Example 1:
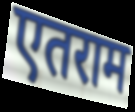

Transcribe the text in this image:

एतराम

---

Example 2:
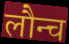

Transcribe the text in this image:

लौन्च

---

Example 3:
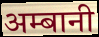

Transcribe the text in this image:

अम्‍बानी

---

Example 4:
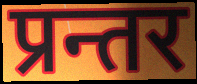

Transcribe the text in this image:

प्रन्तर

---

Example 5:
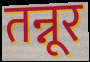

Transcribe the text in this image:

तन्नूर